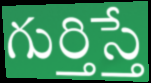
గుర్తిస్తే